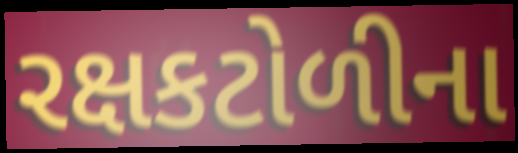
રક્ષકટોળીના